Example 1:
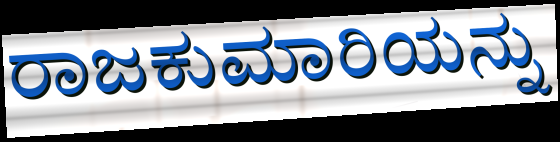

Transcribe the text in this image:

ರಾಜಕುಮಾರಿಯನ್ನು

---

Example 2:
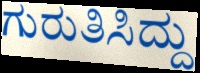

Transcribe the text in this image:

ಗುರುತಿಸಿದ್ದು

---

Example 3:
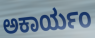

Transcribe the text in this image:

ಅಕಾರ್ಯಂ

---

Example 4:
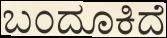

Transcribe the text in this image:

ಬಂದೂಕಿದೆ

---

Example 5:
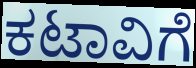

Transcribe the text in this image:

ಕಟಾವಿಗೆ